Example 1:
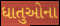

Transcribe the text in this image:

ધાતુઓના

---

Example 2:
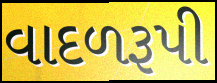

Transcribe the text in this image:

વાદળરૂપી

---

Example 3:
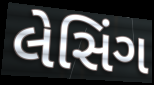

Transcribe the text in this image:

લેસિંગ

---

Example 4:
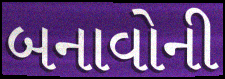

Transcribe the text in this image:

બનાવોની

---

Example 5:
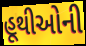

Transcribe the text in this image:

હૂથીઓની